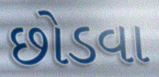
છોડવા